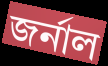
জৰ্নাল